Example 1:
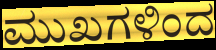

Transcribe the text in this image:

ಮುಖಗಳಿಂದ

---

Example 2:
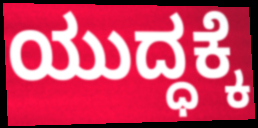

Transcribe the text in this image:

ಯುದ್ಧಕ್ಕೆ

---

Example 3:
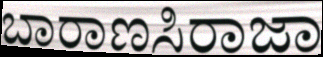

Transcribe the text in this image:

ಬಾರಾಣಸಿರಾಜಾ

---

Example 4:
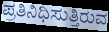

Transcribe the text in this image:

ಪ್ರತಿನಿಧಿಸುತ್ತಿರುವ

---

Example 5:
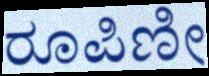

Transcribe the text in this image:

ರೂಪಿಣೀ